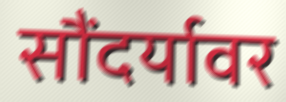
सौंदर्यावर